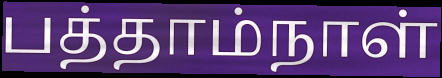
பத்தாம்நாள்